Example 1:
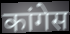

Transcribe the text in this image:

कांगेस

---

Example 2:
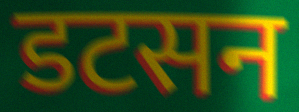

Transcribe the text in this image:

डटसन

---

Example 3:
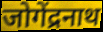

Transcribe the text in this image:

जोगेंद्रनाथ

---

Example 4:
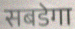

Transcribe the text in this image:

सबडेगा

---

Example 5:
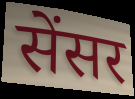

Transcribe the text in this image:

सेंसर